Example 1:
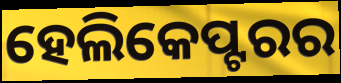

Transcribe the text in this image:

ହେଲିକେପ୍ଟରର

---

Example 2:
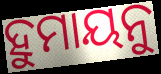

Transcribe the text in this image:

ହୁମାୟନୁ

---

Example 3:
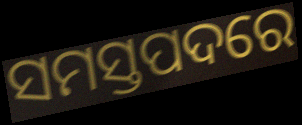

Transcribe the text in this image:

ସମସ୍ତପଦରେ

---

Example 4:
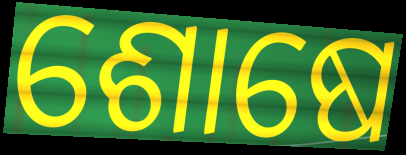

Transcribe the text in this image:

ଶୋଷେ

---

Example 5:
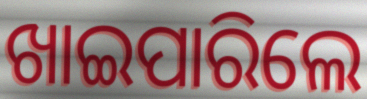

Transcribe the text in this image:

ଖାଇପାରିଲେ